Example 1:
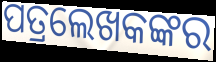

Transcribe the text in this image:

ପତ୍ରଲେଖକଙ୍କର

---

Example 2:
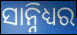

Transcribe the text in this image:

ସାନ୍ନିଧ୍ୟର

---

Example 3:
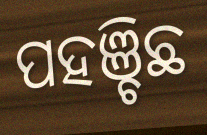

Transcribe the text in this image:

ପହଞ୍ଚିଛ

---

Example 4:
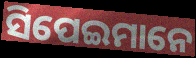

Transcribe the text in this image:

ସିପେଇମାନେ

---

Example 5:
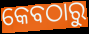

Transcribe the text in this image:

କେବଠାରୁ